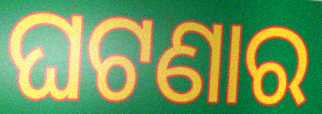
ଘଟଣାର